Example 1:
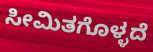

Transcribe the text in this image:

ಸೀಮಿತಗೊಳ್ಳದೆ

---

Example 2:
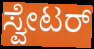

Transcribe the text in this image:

ಸ್ವೇಟರ್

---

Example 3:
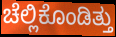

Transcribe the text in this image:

ಚೆಲ್ಲಿಕೊಂಡಿತ್ತು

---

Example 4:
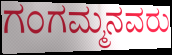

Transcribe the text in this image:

ಗಂಗಮ್ಮನವರು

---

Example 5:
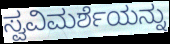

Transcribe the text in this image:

ಸ್ವವಿಮರ್ಶೆಯನ್ನು